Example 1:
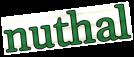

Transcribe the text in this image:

nuthal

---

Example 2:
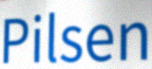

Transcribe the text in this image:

Pilsen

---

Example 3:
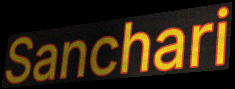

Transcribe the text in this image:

Sanchari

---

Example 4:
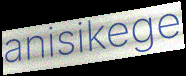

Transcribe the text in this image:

anisikege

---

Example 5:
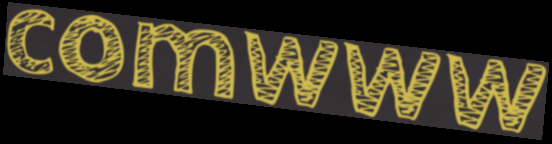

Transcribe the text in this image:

comwww